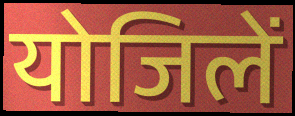
योजिलें